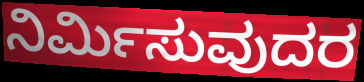
ನಿರ್ಮಿಸುವುದರ